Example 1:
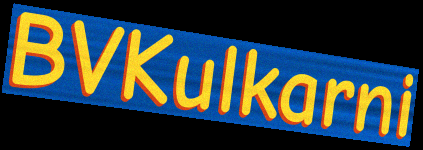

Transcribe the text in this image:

BVKulkarni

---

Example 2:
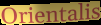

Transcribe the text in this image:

Orientalis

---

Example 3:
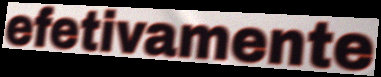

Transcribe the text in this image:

efetivamente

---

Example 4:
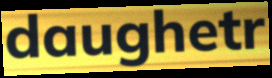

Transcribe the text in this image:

daughetr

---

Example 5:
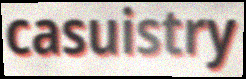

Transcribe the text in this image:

casuistry